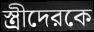
স্ত্রীদেরকে